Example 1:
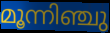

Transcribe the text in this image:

മൂന്നിഞ്ചു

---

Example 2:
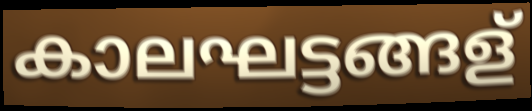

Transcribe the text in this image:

കാലഘട്ടങ്ങള്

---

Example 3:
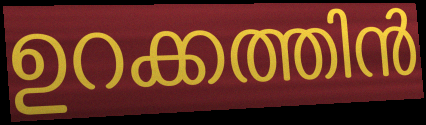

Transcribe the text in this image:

ഉറക്കത്തിൻ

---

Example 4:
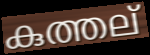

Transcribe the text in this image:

കുത്തല്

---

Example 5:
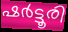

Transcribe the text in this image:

ഷർട്ടൂരി